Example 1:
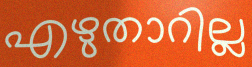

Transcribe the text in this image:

എഴുതാറില്ല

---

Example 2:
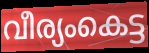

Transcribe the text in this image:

വീര്യംകെട്ട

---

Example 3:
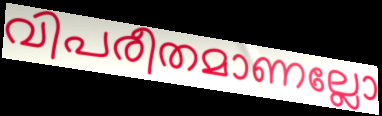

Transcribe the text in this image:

വിപരീതമാണല്ലോ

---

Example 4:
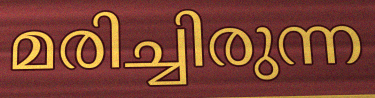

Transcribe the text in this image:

മരിച്ചിരുന്ന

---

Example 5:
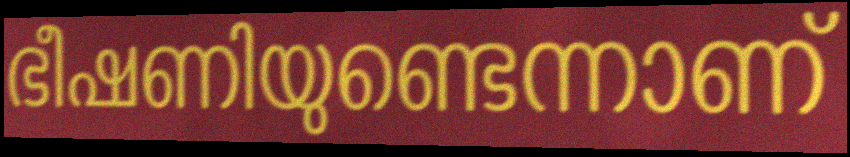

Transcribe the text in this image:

ഭീഷണിയുണ്ടെന്നാണ്